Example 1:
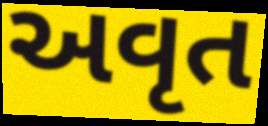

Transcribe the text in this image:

અવૃત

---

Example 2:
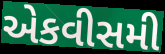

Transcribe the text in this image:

એકવીસમી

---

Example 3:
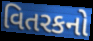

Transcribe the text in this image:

વિતરકનો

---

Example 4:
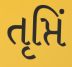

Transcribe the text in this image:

તૃપ્તિં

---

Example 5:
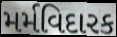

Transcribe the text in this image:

મર્મવિદારક